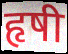
हृषी